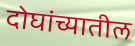
दोघांच्यातील